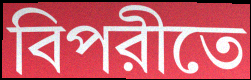
বিপরীতে